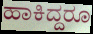
ಹಾಕಿದ್ದರೂ